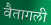
वैतागली